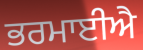
ਭਰਮਾਈਐ